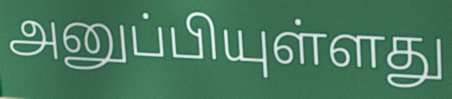
அனுப்பியுள்ளது